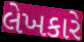
લેખકારે